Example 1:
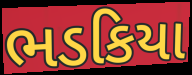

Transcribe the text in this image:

ભડકિયા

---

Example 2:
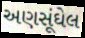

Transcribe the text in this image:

અણસૂંઘેલ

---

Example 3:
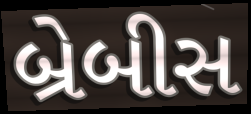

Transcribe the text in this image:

બ્રેબીસ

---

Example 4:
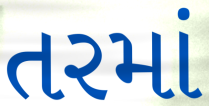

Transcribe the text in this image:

તરમાં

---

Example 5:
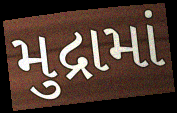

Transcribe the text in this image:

મુદ્રામાં